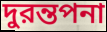
দুরন্তপনা